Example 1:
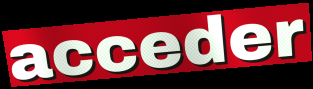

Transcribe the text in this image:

acceder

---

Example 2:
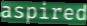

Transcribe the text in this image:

aspired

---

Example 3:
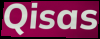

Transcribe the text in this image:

Qisas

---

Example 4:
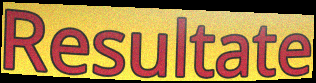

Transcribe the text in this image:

Resultate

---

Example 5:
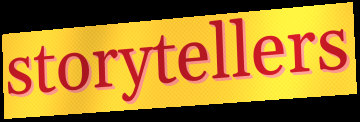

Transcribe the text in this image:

storytellers